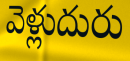
వెళ్లుదురు